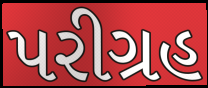
પરીગ્રહ